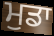
ਮੁਡਾ